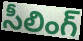
సీలింగ్